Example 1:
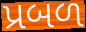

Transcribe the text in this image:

પ્રબળ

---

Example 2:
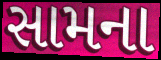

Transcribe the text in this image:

સામના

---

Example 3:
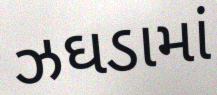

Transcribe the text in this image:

ઝઘડામાં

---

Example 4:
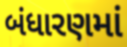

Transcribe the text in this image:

બંધારણમાં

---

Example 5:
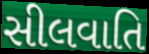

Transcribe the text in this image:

સીલવાતિ